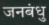
जनबंधु